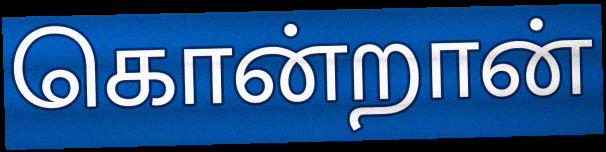
கொன்றான்